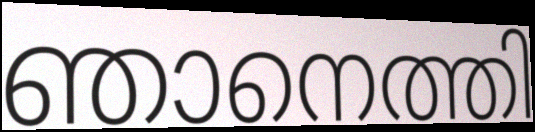
ഞാനെത്തി